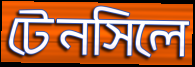
টেনসিলে